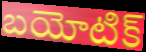
బయోటిక్